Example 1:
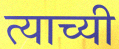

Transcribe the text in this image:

त्याच्यी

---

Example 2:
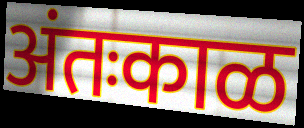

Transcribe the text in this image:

अंतःकाळ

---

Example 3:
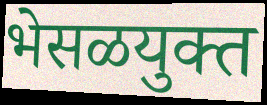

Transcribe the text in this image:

भेसळयुक्त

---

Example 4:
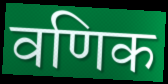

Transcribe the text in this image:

वणिक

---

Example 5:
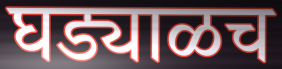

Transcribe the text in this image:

घड्याळच